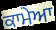
ਕਾਮੇਆ